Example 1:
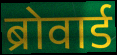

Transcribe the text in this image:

ब्रोवार्ड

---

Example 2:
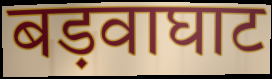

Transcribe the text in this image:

बड़वाघाट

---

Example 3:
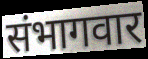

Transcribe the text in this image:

संभागवार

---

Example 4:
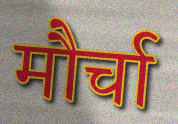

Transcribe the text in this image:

मौर्चा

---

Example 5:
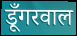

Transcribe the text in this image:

डूँगरवाल